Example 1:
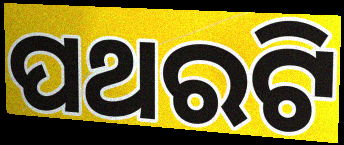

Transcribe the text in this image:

ପଥରଟି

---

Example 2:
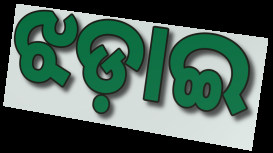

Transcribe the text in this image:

ଝଡ଼ାଇ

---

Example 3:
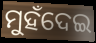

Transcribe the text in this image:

ମୁହଁଦେଇ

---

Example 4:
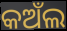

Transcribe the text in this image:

କଅଁଲ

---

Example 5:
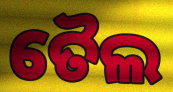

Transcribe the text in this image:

ତୈଲ